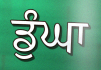
ਡੁੰਘਾ